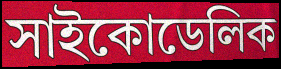
সাইকোডেলিক